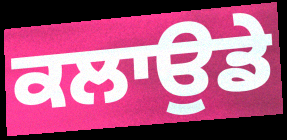
ਕਲਾਉਡੇ